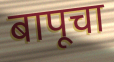
बापूचा